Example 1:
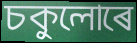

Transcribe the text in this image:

চকুলোৰে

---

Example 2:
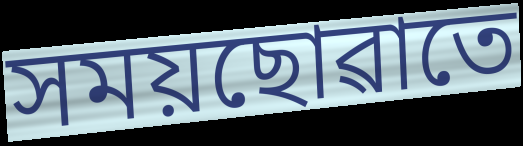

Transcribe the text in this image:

সময়ছোৱাতে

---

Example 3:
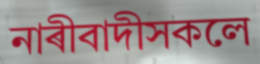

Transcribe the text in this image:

নাৰীবাদীসকলে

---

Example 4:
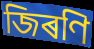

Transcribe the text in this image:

জিৰণি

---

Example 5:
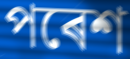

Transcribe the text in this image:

পৰেশ